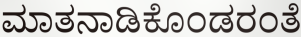
ಮಾತನಾಡಿಕೊಂಡರಂತೆ